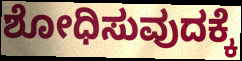
ಶೋಧಿಸುವುದಕ್ಕೆ